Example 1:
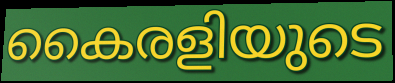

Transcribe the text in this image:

കൈരളിയുടെ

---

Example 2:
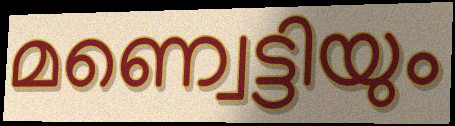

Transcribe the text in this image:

മണ്വെട്ടിയും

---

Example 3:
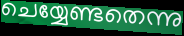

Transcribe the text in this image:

ചെയ്യേണ്ടതെന്നു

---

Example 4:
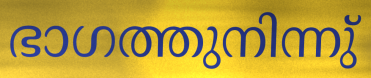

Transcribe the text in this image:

ഭാഗത്തുനിന്നു്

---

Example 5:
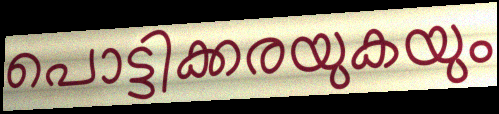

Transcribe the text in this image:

പൊട്ടിക്കരയുകയും